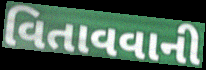
વિતાવવાની